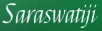
Saraswatiji